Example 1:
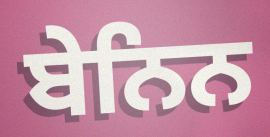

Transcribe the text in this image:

ਬੇਨਿਨ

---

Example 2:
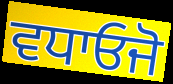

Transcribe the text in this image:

ਵਧਾਓਜੋ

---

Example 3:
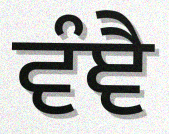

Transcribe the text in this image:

ਵੰਞੈ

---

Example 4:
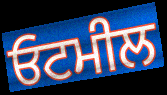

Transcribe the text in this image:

ਓਟਮੀਲ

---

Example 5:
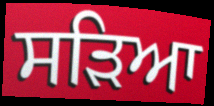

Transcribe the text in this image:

ਸੜਿਆ